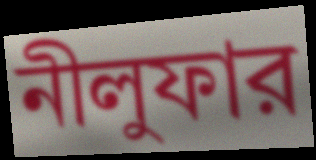
নীলুফার